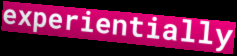
experientially